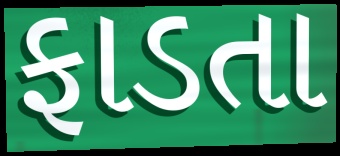
ફાડતા